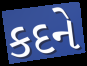
કદને